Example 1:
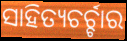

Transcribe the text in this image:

ସାହିତ୍ୟଚର୍ଚ୍ଚାର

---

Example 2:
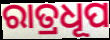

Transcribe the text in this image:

ରାତ୍ରଧୂପ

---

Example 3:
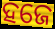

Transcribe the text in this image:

ହଜେ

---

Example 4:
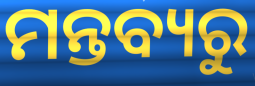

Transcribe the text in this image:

ମନ୍ତବ୍ୟରୁ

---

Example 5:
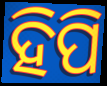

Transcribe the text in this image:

ହିପି